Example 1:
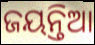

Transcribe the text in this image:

ଜୟନ୍ତିଆ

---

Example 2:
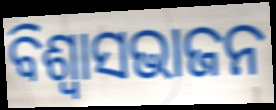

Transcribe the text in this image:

ବିଶ୍ୱାସଭାଜନ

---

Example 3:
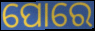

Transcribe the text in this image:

ପୋରେ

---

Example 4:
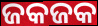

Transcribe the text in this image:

ଜକଜକ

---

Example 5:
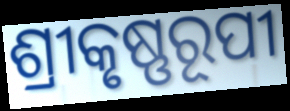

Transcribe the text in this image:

ଶ୍ରୀକୃଷ୍ଣରୂପୀ